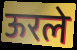
ऊरले